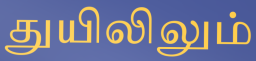
துயிலிலும்